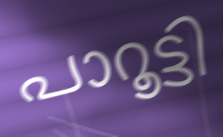
പാറൂട്ടി